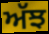
ਅੱਝ